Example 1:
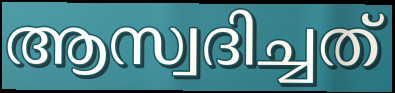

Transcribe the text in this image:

ആസ്വദിച്ചത്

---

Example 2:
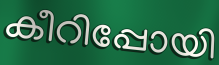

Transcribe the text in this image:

കീറിപ്പോയി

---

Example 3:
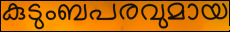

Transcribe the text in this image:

കുടുംബപരവുമായ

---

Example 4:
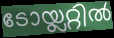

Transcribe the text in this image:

ടോയ്ലറ്റിൽ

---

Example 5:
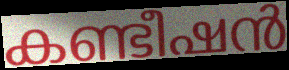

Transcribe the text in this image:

കണ്ടീഷൻ